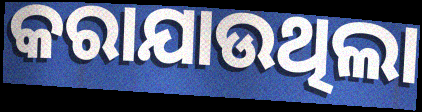
କରାଯାଉଥିଲା